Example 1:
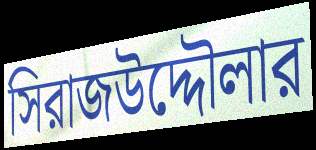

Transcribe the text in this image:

সিরাজউদ্দৌলার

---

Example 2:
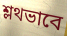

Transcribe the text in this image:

শ্লথভাবে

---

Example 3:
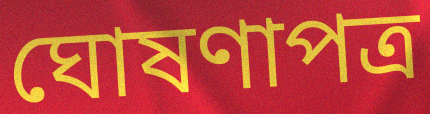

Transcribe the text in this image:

ঘোষণাপত্র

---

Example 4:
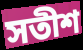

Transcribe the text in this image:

সতীশ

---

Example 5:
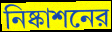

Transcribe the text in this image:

নিষ্কাশনের